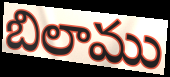
బిలాము